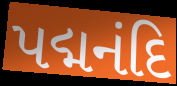
પદ્મનંદિ